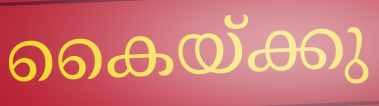
കൈയ്ക്കു